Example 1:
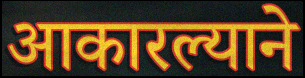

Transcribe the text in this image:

आकारल्याने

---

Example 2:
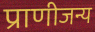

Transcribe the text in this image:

प्राणीजन्य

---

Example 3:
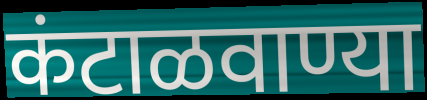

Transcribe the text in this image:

कंटाळवाण्या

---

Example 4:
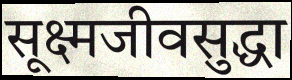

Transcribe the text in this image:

सूक्ष्मजीवसुद्धा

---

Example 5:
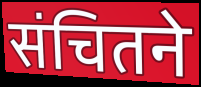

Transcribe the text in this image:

संचितने